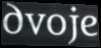
dvoje